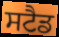
ਸਟੈਡ